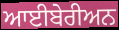
ਆਈਬੇਰੀਅਨ